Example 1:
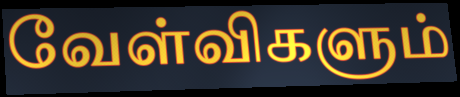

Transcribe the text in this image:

வேள்விகளும்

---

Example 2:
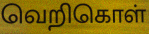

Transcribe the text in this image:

வெறிகொள்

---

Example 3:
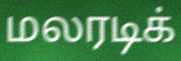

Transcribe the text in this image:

மலரடிக்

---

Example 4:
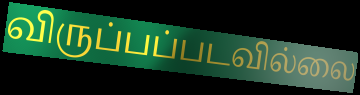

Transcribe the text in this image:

விருப்பப்படவில்லை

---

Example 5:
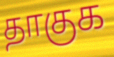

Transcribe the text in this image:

தாகுக